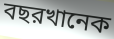
বছরখানেক